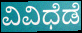
ವಿವಿಧೆಡೆ